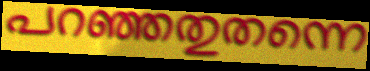
പറഞ്ഞതുതന്നെ